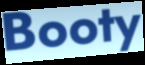
Booty